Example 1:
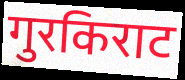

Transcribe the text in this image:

गुरकिराट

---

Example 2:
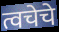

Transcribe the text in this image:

त्वचेचे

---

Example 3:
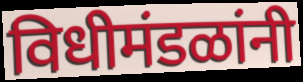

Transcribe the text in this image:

विधीमंडळांनी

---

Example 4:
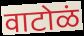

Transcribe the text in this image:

वाटोळं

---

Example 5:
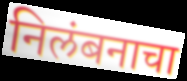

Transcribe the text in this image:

निलंबनाचा